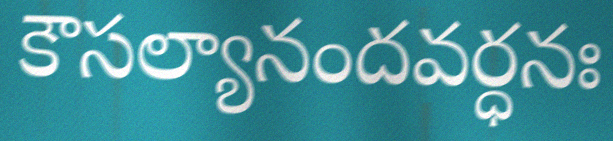
కౌసల్యానందవర్ధనః